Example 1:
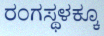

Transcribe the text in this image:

ರಂಗಸ್ಥಳಕ್ಕೂ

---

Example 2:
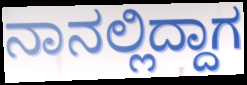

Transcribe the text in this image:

ನಾನಲ್ಲಿದ್ದಾಗ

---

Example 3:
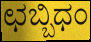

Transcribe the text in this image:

ಛಬ್ಬಿಧಂ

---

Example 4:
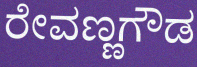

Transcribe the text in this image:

ರೇವಣ್ಣಗೌಡ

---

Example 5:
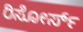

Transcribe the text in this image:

ರಿಸೋರ್ಸ್